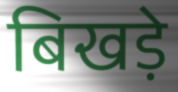
बिखड़े